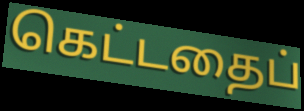
கெட்டதைப்